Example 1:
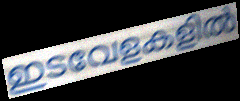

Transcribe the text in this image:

ഇടവേളകളിൽ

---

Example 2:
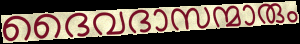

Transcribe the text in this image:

ദൈവദാസന്മാരും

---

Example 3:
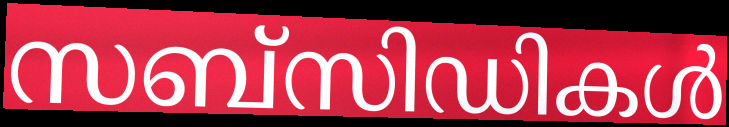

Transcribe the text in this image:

സബ്സിഡികൾ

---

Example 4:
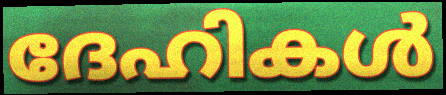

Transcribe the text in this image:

ദേഹികൾ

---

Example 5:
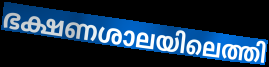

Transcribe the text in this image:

ഭക്ഷണശാലയിലെത്തി